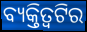
ବ୍ୟକ୍ତିତ୍ୱଟିର